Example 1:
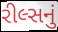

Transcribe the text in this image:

રીલ્સનું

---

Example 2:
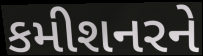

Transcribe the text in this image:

કમીશનરને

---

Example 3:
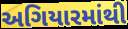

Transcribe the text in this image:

અગિયારમાંથી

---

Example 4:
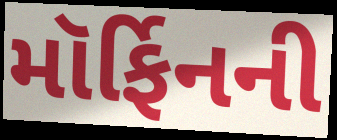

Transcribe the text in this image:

મૉર્ફિનની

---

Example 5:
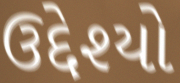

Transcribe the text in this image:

ઉદ્દેશ્યો